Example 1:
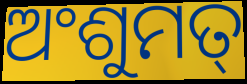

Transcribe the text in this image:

ଅଂଶୁମତ୍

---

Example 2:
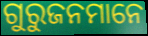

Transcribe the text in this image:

ଗୁରୁଜନମାନେ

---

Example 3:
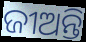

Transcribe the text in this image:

ଜୀଅନ୍ତି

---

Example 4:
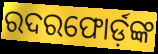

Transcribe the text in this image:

ରଦରଫୋର୍ଡ଼ଙ୍କ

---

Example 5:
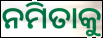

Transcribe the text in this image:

ନମିତାକୁ